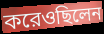
করেওছিলেন